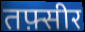
तफ़्सीर